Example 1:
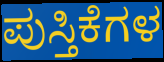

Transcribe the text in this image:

ಪುಸ್ತಿಕೆಗಳ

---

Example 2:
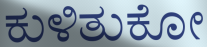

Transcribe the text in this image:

ಕುಳಿತುಕೋ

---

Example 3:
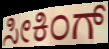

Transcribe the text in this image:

ಸೀಕಿಂಗ್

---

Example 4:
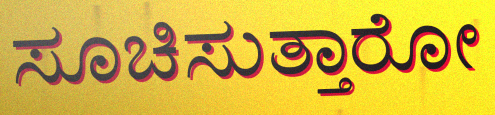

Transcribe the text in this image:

ಸೂಚಿಸುತ್ತಾರೋ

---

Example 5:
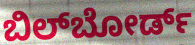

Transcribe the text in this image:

ಬಿಲ್‌ಬೋರ್ಡ್